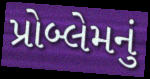
પ્રોબ્લેમનું